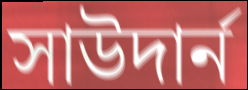
সাউদার্ন